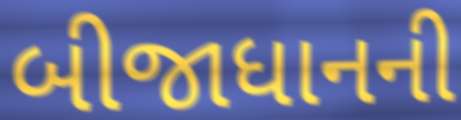
બીજાધાનની